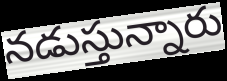
నడుస్తున్నారు